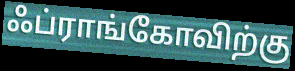
ஃப்ராங்கோவிற்கு